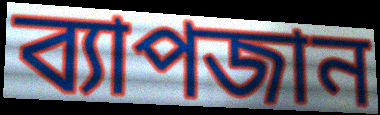
ব্যাপজান